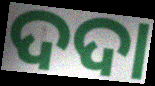
ଦଦା